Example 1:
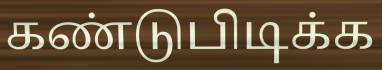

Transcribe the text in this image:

கண்டுபிடிக்க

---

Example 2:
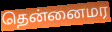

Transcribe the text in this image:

தென்னைமர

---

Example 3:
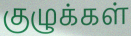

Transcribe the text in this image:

குழுக்கள்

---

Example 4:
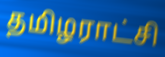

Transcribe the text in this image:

தமிழராட்சி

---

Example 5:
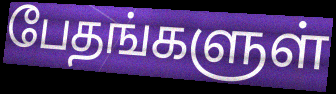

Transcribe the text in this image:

பேதங்களுள்